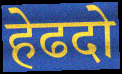
हेढदो